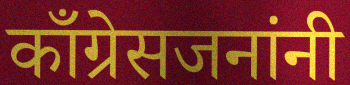
काँग्रेसजनांनी